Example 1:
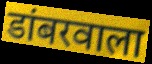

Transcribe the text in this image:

डांबरवाला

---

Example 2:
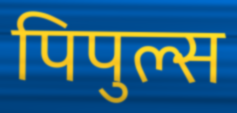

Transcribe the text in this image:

पिपुल्स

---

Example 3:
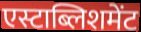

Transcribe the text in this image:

एस्टाब्लिशमेंट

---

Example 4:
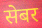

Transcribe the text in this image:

सेबर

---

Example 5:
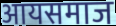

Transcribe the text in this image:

आयसमाज